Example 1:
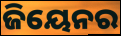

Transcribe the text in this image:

ଜିୟେନର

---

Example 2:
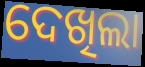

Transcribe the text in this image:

ଦେଖିଲା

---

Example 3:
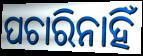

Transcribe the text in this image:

ପଚାରିନାହିଁ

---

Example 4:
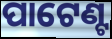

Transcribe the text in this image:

ପାଟେଣ୍ଟ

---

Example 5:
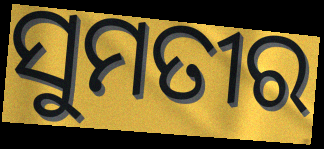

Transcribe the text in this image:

ସୁମତୀର